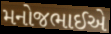
મનોજભાઈએ